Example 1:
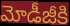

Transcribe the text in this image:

మోడీజీకి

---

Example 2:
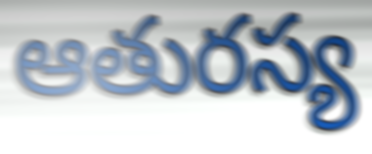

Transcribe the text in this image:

ఆతురస్య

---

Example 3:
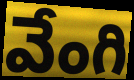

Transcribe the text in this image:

వేంగి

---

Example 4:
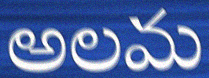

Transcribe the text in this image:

అలమ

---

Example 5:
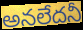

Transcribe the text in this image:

అనలేదనీ